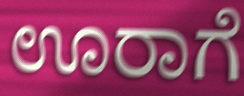
ಊರಾಗೆ